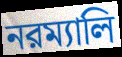
নরম্যালি